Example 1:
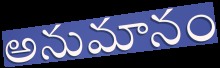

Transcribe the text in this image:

అనుమానం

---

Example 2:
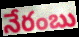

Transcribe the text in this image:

నేరంబు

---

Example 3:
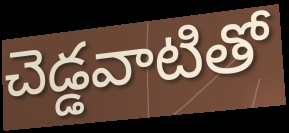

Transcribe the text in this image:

చెడ్డవాటితో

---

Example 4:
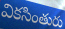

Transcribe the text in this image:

వికసింతురు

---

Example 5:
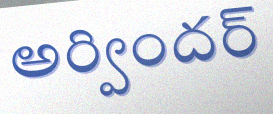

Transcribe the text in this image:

అర్విందర్